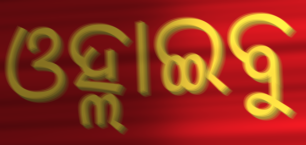
ଓହ୍ଲାଇବୁ